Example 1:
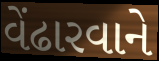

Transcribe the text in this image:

વેંઢારવાને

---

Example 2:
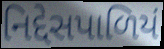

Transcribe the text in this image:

નિદ્દેસપાળિયં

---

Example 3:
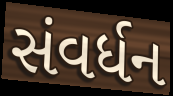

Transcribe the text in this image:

સંવર્ધન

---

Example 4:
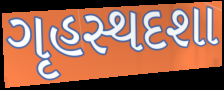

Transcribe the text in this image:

ગૃહસ્થદશા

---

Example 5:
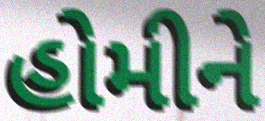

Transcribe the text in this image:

હોમીને